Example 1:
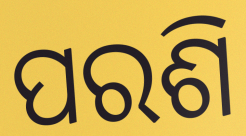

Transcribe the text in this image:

ପରଶି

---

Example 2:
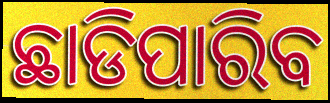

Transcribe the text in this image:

ଛାଡିପାରିବ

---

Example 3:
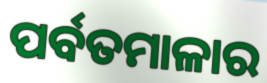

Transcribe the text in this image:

ପର୍ବତମାଳାର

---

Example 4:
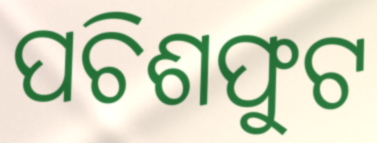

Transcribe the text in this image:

ପଚିଶଫୁଟ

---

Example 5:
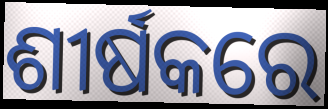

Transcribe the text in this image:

ଶୀର୍ଷକରେ